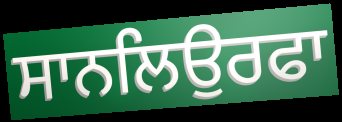
ਸਾਨਲਿਉਰਫਾ